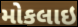
મોકલાઇ